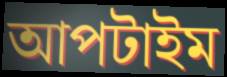
আপটাইম